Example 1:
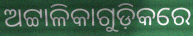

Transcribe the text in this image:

ଅଟ୍ଟାଳିକାଗୁଡ଼ିକରେ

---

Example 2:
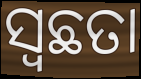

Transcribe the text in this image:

ସ୍ବଛତା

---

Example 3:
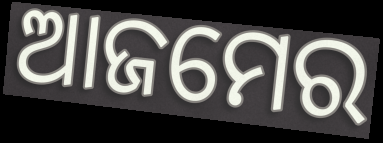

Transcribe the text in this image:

ଆଜମେର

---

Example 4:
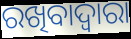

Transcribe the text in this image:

ରଖିବାଦ୍ୱାରା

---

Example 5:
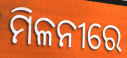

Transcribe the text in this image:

ମିଳନୀରେ